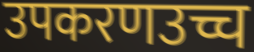
उपकरणउच्च